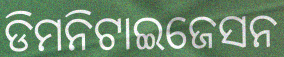
ଡିମନିଟାଇଜେସନ